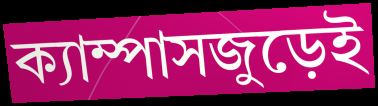
ক্যাম্পাসজুড়েই